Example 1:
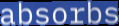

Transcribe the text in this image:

absorbs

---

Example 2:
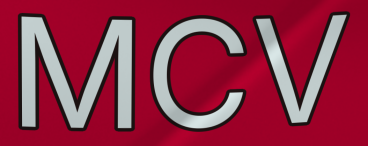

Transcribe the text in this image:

MCV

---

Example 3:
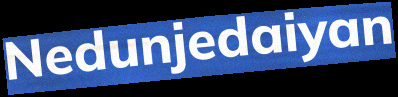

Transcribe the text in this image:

Nedunjedaiyan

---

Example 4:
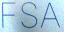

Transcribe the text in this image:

FSA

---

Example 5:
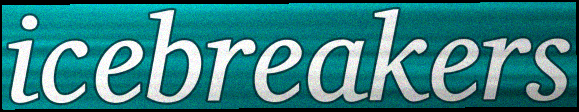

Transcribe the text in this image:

icebreakers